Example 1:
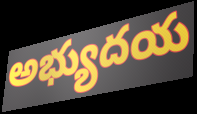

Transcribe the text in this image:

అభ్యుదయ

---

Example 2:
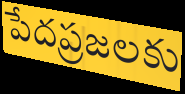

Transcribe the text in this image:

పేదప్రజలకు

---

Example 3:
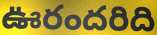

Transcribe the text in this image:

ఊరందరిది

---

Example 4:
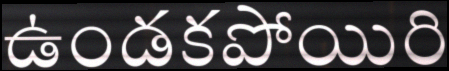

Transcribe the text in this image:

ఉండకపోయిరి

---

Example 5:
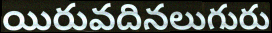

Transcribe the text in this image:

యిరువదినలుగురు